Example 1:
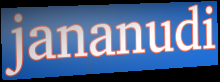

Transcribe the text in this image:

jananudi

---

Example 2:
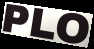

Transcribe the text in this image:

PLO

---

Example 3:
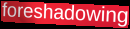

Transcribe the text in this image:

foreshadowing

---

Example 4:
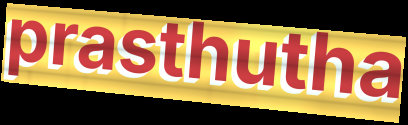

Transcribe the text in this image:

prasthutha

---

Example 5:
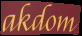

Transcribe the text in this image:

akdom